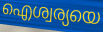
ഐശ്വര്യയെ